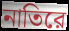
নাতিরে